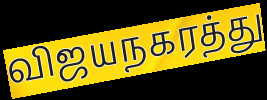
விஜயநகரத்து